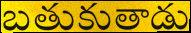
బతుకుతాడు